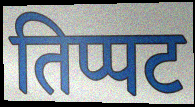
तिप्पट